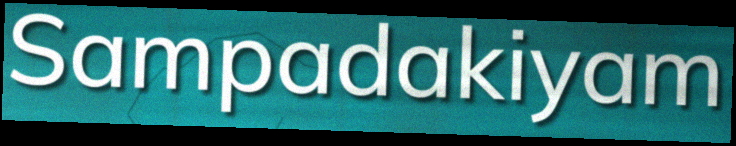
Sampadakiyam